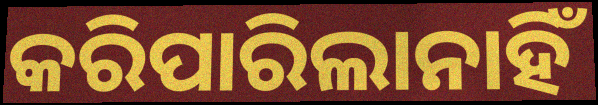
କରିପାରିଲାନାହିଁ